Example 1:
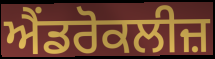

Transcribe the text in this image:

ਐਂਡਰੋਕਲੀਜ਼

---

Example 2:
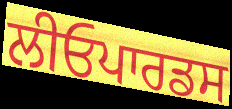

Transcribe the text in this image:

ਲੀਓਪਾਰਡਸ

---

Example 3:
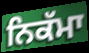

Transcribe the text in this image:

ਨਿਕੱਮਾ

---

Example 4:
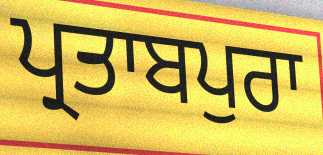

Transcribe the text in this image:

ਪ੍ਰਤਾਬਪੁਰਾ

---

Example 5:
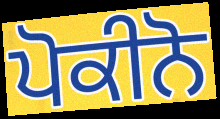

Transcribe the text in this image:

ਪੋਕੀਨੋ